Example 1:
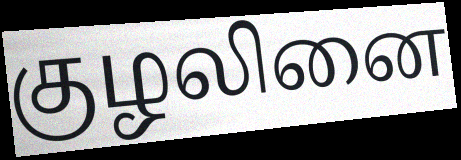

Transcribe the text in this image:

குழலினை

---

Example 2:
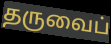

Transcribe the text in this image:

தருவைப்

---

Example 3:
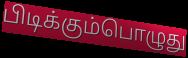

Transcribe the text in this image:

பிடிக்கும்பொழுது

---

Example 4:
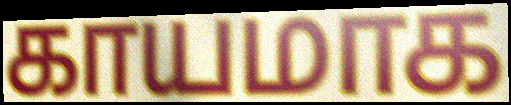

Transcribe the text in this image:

காயமாக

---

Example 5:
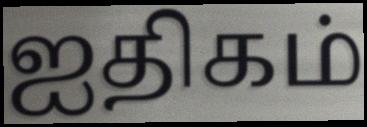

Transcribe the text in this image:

ஐதிகம்